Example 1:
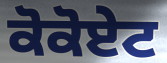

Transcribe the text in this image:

ਕੋਕੋਏਟ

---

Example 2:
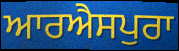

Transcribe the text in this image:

ਆਰਐਸਪੁਰਾ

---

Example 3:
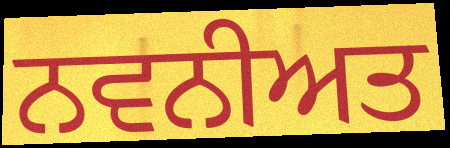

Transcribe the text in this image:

ਨਵਨੀਅਤ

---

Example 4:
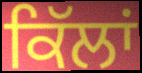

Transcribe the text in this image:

ਕਿੱਲਾਂ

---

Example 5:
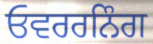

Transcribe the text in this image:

ਓਵਰਰਨਿੰਗ